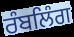
ਰੰਬਲਿੰਗ